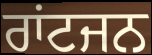
ਰਾਂਟਜਨ